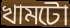
খামটো